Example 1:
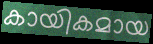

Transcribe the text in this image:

കായികമായ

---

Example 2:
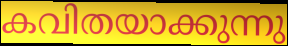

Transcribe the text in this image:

കവിതയാക്കുന്നു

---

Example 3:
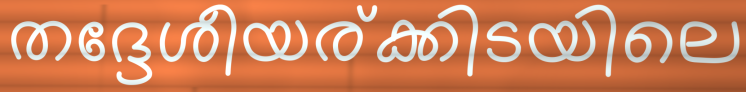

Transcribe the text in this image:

തദ്ദേശീയര്ക്കിടയിലെ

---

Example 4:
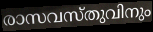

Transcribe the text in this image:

രാസവസ്തുവിനും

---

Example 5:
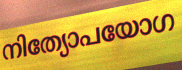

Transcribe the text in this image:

നിത്യോപയോഗ